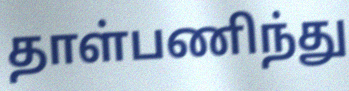
தாள்பணிந்து